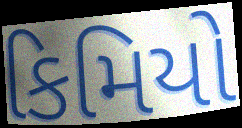
કિમિયો